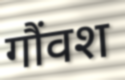
गौंवश